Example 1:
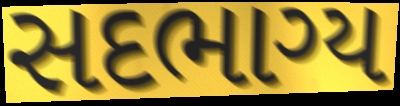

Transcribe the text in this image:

સદભાગ્ય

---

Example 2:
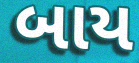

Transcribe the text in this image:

બાય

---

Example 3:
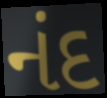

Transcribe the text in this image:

નંદ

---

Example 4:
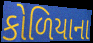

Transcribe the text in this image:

કોળિયાના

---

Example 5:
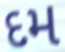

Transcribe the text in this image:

દમ